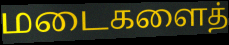
மடைகளைத்